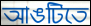
আঙটিতে